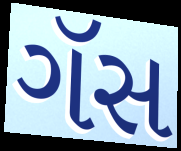
ગૅસ